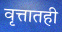
वृत्तातही